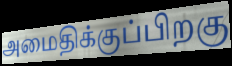
அமைதிக்குப்பிறகு